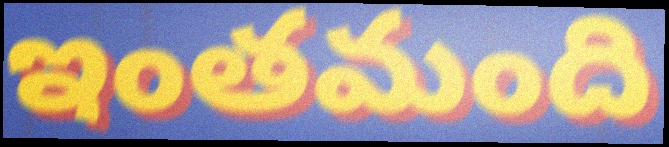
ఇంతమంది